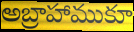
అబ్రాహాముకూ